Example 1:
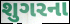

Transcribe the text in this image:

શુગરના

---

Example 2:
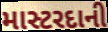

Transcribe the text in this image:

માસ્ટરદાની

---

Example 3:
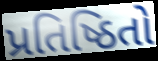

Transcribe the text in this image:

પ્રતિષ્ઠિતો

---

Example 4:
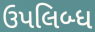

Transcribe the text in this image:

ઉપલિબ્ધ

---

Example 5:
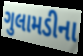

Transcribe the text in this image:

ગુલામડીના